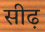
सीढ़